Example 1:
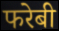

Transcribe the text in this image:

फरेबी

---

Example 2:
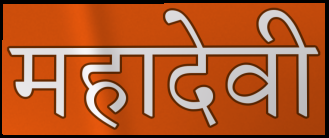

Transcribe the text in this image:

महादेवी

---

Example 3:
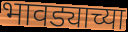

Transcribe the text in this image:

भावड्याच्या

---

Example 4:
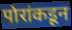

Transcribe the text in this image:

पोरांकडून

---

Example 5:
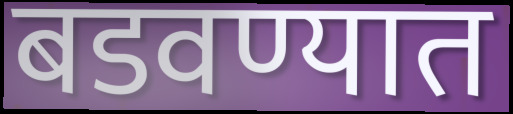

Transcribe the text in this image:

बडवण्यात